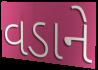
વડાને